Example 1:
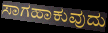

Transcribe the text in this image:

ಸಾಗಹಾಕುವುದು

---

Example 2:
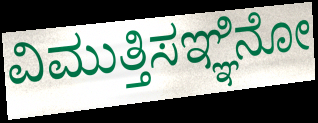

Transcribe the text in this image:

ವಿಮುತ್ತಿಸಞ್ಞಿನೋ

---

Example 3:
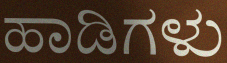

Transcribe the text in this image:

ಹಾಡಿಗಳು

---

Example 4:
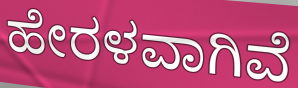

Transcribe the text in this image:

ಹೇರಳವಾಗಿವೆ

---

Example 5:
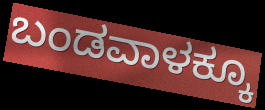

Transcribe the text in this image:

ಬಂಡವಾಳಕ್ಕೂ